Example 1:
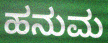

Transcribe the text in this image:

ಹನುಮ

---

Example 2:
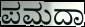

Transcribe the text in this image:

ಪಮದಾ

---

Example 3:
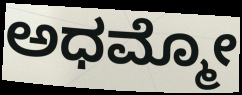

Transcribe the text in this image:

ಅಧಮ್ಮೋ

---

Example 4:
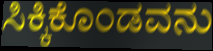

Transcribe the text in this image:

ಸಿಕ್ಕಿಕೊಂಡವನು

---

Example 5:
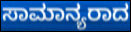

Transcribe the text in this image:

ಸಾಮಾನ್ಯರಾದ